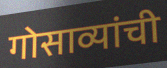
गोसाव्यांची